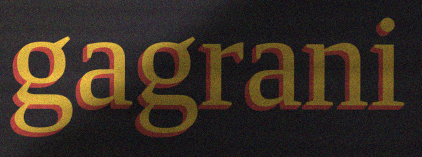
gagrani